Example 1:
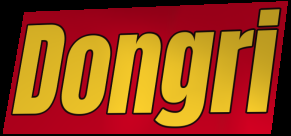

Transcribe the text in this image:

Dongri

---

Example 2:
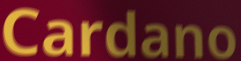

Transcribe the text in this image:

Cardano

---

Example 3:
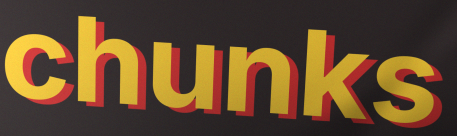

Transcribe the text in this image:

chunks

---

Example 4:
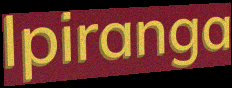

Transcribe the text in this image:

Ipiranga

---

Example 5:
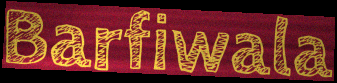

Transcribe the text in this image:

Barfiwala